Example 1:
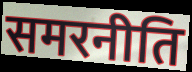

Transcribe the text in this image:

समरनीति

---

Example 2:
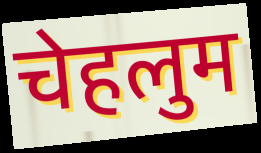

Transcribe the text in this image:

चेहलुम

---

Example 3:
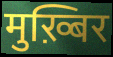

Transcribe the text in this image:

मुख़्बिर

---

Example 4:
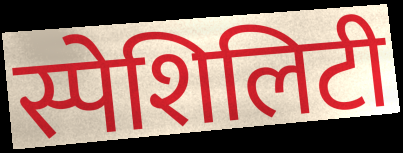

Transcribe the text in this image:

स्पेशिलिटी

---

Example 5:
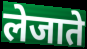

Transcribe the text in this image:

लेजाते